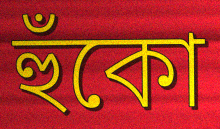
হুঁকো